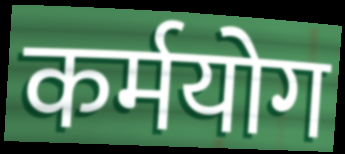
कर्मयोग